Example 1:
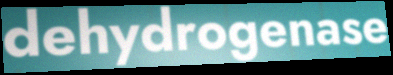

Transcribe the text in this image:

dehydrogenase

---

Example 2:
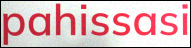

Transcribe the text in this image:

pahissasi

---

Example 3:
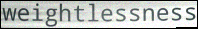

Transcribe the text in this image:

weightlessness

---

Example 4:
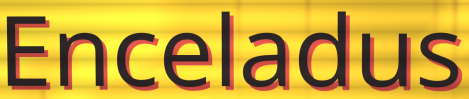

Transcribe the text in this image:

Enceladus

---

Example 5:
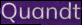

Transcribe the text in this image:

Quandt